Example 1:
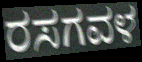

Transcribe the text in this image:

ರಸಗವಳ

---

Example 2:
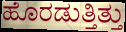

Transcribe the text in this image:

ಹೊರಡುತ್ತಿತ್ತು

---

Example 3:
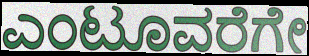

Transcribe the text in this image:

ಎಂಟೂವರೆಗೇ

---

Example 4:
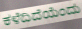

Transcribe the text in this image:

ಕಳೆದಿದೆಯೆಂದು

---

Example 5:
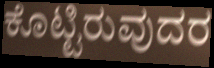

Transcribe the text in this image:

ಕೊಟ್ಟಿರುವುದರ